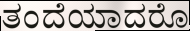
ತಂದೆಯಾದರೊ